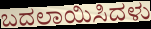
ಬದಲಾಯಿಸಿದಳು